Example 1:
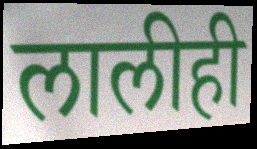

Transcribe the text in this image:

लालीही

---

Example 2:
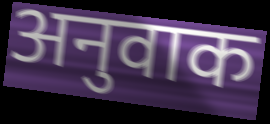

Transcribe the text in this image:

अनुवाक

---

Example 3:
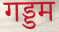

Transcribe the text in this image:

गड्डम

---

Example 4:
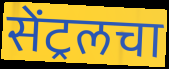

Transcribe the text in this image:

सेंट्रलचा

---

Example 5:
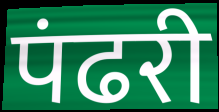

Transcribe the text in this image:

पंढरी